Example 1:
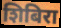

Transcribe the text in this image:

शिबिरा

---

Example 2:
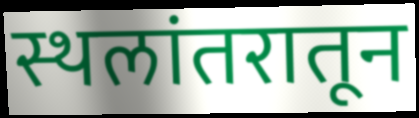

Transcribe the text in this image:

स्थलांतरातून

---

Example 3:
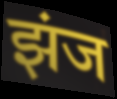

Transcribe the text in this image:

झंज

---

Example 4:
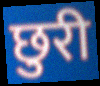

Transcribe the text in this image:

छुरी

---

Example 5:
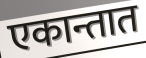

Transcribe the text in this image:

एकान्तात